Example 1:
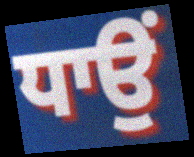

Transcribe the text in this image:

ਧਾਉਂ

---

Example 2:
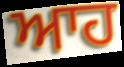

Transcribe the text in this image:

ਆਹ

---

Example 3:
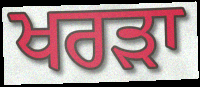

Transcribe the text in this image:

ਖਰੜਾ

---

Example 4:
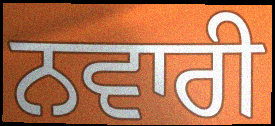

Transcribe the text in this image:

ਨਵਾਰੀ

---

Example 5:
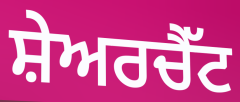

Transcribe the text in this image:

ਸ਼ੇਅਰਚੈੱਟ